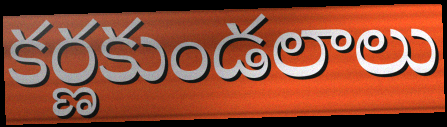
కర్ణకుండలాలు